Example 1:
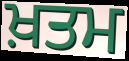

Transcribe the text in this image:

ਖ਼ਤਮ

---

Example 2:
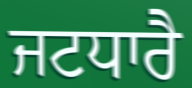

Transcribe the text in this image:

ਜਟਧਾਰੈ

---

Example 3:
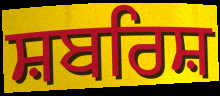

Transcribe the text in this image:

ਸ਼ਬਰਿਸ਼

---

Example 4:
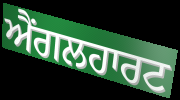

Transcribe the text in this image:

ਐਂਗਲਹਾਰਟ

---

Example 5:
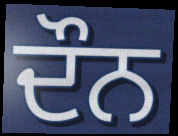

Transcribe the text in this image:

ਦੌਨ